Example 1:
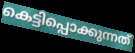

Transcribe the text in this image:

കെട്ടിപ്പൊക്കുന്നത്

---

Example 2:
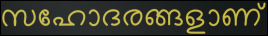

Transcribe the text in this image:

സഹോദരങ്ങളാണ്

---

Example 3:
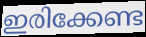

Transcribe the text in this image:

ഇരിക്കേണ്ട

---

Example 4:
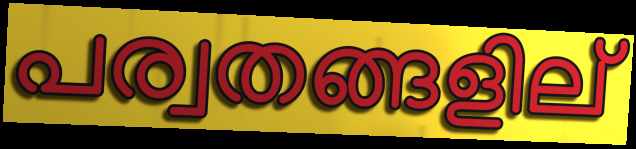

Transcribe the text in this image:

പര്വതങ്ങളില്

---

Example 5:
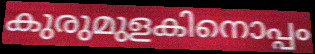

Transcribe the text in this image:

കുരുമുളകിനൊപ്പം